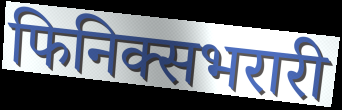
फिनिक्सभरारी